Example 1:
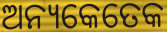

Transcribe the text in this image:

ଅନ୍ୟକେତେକ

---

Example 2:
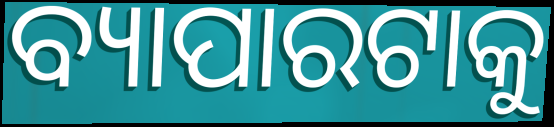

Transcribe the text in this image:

ବ୍ୟାପାରଟାକୁ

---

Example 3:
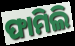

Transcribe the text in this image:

ଫାମିଲି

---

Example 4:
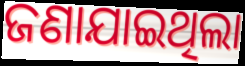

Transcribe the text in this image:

ଜଣାଯାଇଥିଲା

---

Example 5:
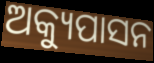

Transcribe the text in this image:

ଅକ୍ୟୁପାସନ